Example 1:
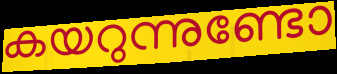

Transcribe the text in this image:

കയറുന്നുണ്ടോ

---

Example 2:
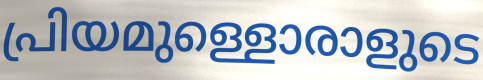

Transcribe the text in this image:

പ്രിയമുള്ളൊരാളുടെ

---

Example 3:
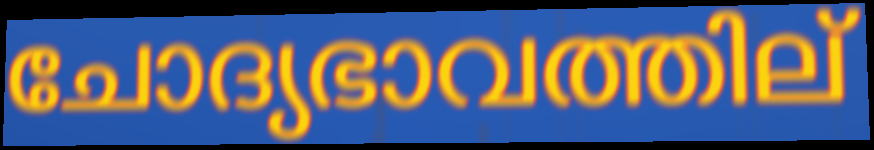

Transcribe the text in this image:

ചോദ്യഭാവത്തില്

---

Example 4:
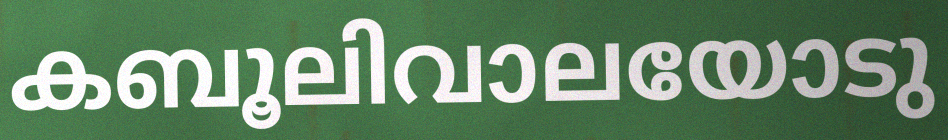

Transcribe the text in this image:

കബൂലിവാലയോടു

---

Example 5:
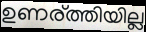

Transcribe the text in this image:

ഉണര്ത്തിയില്ല